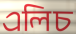
এলিচ